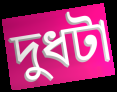
দুধটা